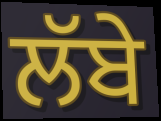
ਲੱਬੇ